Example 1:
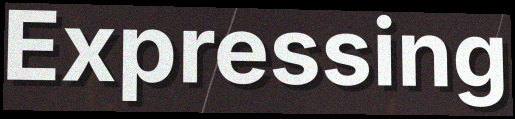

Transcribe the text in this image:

Expressing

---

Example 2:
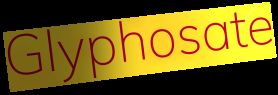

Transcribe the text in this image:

Glyphosate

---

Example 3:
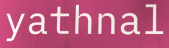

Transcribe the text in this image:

yathnal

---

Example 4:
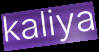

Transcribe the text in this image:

kaliya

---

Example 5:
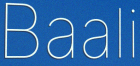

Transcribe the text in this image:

Baali